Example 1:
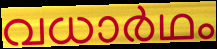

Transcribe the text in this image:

വധാർഥം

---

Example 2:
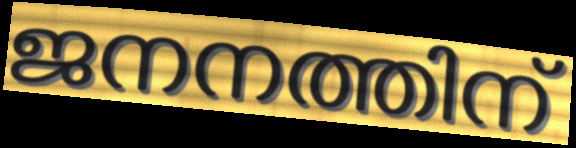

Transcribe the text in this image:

ജനനത്തിന്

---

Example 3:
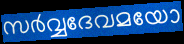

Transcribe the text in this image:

സർവ്വദേവമയോ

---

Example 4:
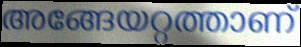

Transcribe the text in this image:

അങ്ങേയറ്റത്താണ്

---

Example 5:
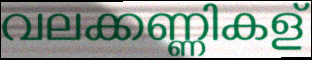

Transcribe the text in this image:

വലക്കണ്ണികള്